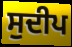
ਸੁਦੀਪ